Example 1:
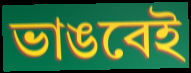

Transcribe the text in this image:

ভাঙবেই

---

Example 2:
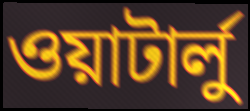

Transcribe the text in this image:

ওয়াটার্লু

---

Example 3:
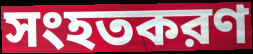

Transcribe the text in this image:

সংহতকরণ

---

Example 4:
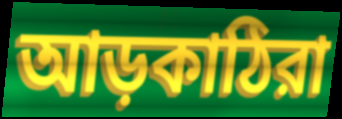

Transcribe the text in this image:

আড়কাঠিরা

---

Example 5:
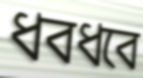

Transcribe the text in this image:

ধবধবে